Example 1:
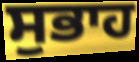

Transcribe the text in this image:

ਸੁਭਾਹ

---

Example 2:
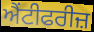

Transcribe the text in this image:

ਐਂਟੀਫਰੀਜ਼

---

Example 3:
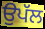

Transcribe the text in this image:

ਉਪੱਲ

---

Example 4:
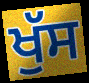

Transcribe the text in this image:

ਖੁੱਸ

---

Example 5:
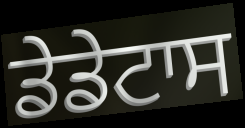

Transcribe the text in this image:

ਡੇਡੇਟਾਸ